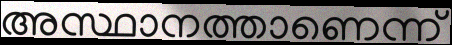
അസ്ഥാനത്താണെന്ന്